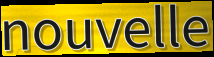
nouvelle